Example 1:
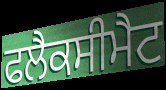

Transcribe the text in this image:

ਫਲੈਕਸੀਮੈਟ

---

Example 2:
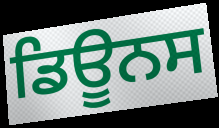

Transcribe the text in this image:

ਡਿਊਨਸ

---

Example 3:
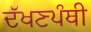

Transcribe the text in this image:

ਦੱਖਣਪੰਥੀ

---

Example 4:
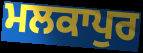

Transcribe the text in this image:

ਮਲਕਾਪੁਰ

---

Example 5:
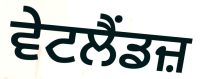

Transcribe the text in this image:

ਵੇਟਲੈਂਡਜ਼